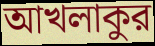
আখলাকুর